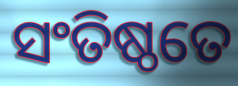
ସଂତିଷ୍ଠତେ